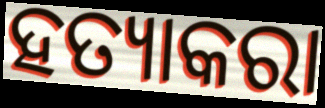
ହତ୍ୟାକରା